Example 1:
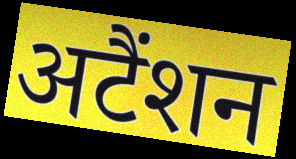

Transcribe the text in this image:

अटैंशन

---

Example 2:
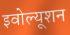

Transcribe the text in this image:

इवोल्यूशन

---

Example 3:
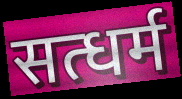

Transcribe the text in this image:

सत्धर्म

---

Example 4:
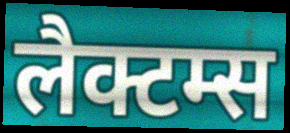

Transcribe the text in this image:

लैक्टम्स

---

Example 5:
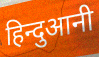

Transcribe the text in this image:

हिन्दुआनी